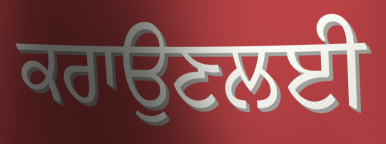
ਕਰਾਉਣਲਈ